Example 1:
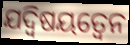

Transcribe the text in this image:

ଯଦ୍ଵିଷୟତ୍ଵେନ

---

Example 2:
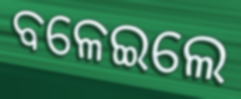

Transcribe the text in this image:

ବଳେଇଲେ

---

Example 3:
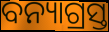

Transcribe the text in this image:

ବନ୍ୟାଗ୍ରସ୍ତ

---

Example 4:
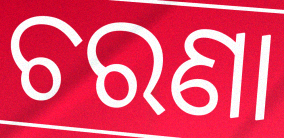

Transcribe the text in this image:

ଚରଣା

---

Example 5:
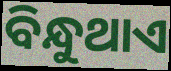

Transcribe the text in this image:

ବିନ୍ଧୁଥାଏ